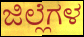
ಜಿಲ್ಲೆಗಳ